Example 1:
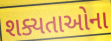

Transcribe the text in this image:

શક્યતાઓના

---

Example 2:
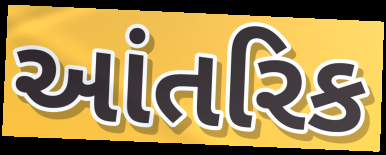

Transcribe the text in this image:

આંતરિક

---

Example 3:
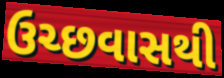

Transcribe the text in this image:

ઉચ્છવાસથી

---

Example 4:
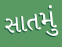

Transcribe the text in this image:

સાતમું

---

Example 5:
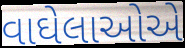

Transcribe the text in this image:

વાઘેલાઓએ